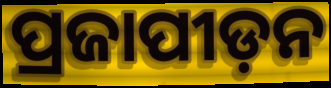
ପ୍ରଜାପୀଡ଼ନ